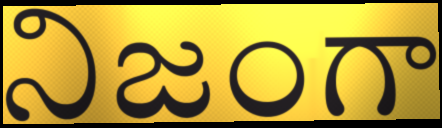
నిజంగా